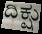
ದಿಕ್ಷು